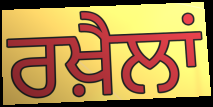
ਰਖ਼ੈਲਾਂ